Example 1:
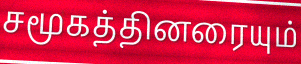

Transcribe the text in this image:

சமூகத்தினரையும்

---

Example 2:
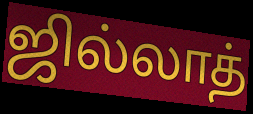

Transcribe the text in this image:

ஜில்லாத்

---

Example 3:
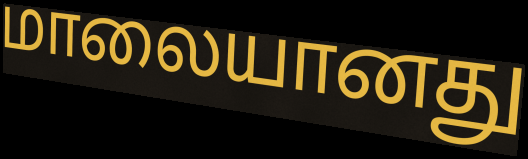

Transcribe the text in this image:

மாலையானது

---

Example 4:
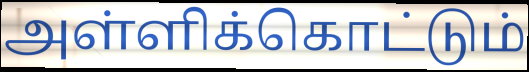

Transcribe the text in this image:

அள்ளிக்கொட்டும்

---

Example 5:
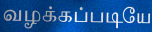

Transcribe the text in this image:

வழக்கப்படியே